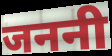
जननी